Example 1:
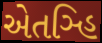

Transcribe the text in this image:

એતઞ્હિ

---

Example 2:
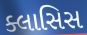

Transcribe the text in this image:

ક્લાસિસ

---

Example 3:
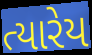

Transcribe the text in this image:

ત્યારેય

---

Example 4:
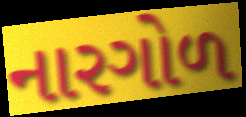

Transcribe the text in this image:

નારગોળ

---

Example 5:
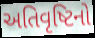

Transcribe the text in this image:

અતિવૃષ્ટિનો